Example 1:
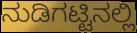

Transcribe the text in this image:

ನುಡಿಗಟ್ಟಿನಲ್ಲಿ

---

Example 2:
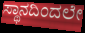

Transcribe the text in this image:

ಸ್ಥಾನದಿಂದಲೇ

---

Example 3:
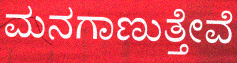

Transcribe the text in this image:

ಮನಗಾಣುತ್ತೇವೆ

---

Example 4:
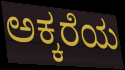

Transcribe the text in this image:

ಅಕ್ಕರೆಯ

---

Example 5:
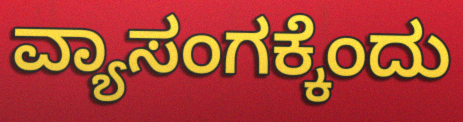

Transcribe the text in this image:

ವ್ಯಾಸಂಗಕ್ಕೆಂದು